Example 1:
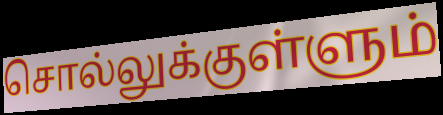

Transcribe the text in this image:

சொல்லுக்குள்ளும்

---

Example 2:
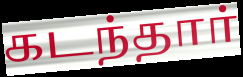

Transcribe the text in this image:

கடந்தார்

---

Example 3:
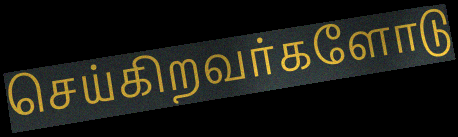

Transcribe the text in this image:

செய்கிறவர்களோடு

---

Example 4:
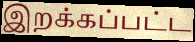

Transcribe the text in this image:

இறக்கப்பட்ட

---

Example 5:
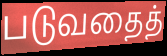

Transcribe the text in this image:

படுவதைத்